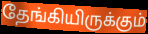
தேங்கியிருக்கும்